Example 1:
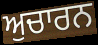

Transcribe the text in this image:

ਅੁਚਾਰਨ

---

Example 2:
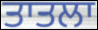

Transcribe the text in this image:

ਤਾਤਲਾ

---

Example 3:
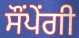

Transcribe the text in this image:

ਸੌਂਪੇਂਗੀ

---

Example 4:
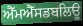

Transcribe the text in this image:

ਐੱਮਐੱਸਡਬਲਿਊ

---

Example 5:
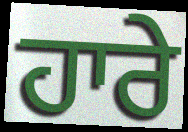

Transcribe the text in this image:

ਹਾਰੇ